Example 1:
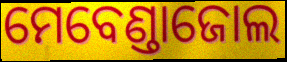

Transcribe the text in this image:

ମେବେଣ୍ଡାଜୋଲ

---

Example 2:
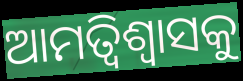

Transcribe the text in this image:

ଆମତ୍ବିଶ୍ୱାସକୁ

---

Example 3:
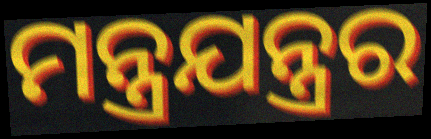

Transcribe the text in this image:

ମନ୍ତ୍ରଯନ୍ତ୍ରର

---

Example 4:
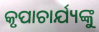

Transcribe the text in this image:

କୃପାଚାର୍ଯ୍ୟଙ୍କୁ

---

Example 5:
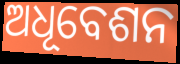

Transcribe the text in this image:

ଅଧୂବେଶନ